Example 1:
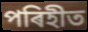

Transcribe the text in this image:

পৰিহীত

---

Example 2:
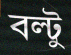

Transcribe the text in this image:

বল্টু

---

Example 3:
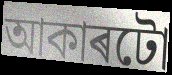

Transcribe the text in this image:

আকাৰটো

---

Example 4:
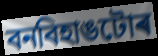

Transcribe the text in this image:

বনবিহাঙটোৰ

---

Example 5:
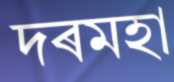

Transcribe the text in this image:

দৰমহা